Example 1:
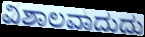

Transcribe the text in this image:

ವಿಶಾಲವಾದುದು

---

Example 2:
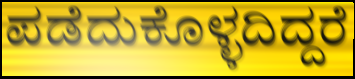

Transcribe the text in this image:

ಪಡೆದುಕೊಳ್ಳದಿದ್ದರೆ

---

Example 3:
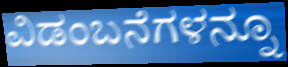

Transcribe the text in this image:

ವಿಡಂಬನೆಗಳನ್ನೂ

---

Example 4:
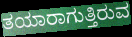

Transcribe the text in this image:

ತಯಾರಾಗುತ್ತಿರುವ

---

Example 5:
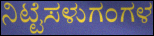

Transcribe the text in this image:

ನಿಟ್ಟೆಸಳುಗಂಗಳ